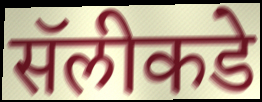
सॅलीकडे